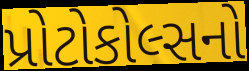
પ્રોટોકોલ્સનો